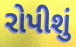
રોપીશું